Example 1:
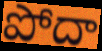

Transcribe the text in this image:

పోదా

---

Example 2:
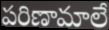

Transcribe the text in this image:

పరిణామాలే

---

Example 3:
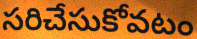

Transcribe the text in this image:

సరిచేసుకోవటం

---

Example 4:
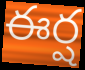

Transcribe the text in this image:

ఈర్ష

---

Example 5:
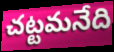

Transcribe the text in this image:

చట్టమనేది